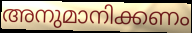
അനുമാനിക്കണം